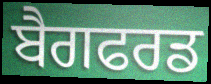
ਬੈਗਫਰਡ